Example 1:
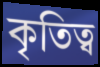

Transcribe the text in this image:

কৃতিত্ব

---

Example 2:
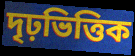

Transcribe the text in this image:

দৃঢ়ভিত্তিক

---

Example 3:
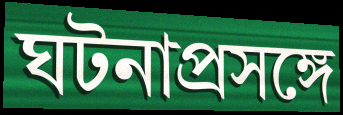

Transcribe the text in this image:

ঘটনাপ্রসঙ্গে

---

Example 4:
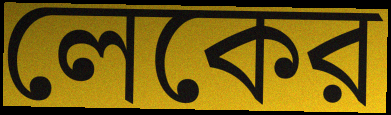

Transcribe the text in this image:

লেকের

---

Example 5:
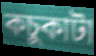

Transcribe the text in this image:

কচুকাটা